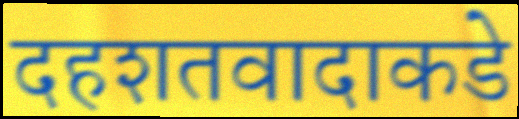
दहशतवादाकडे